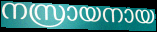
നസ്രായനായ